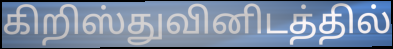
கிறிஸ்துவினிடத்தில்